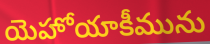
యెహోయాకీమును